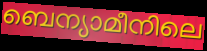
ബെന്യാമീനിലെ